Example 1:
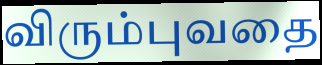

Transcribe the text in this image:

விரும்புவதை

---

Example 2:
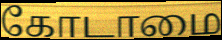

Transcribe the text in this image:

கோடாமை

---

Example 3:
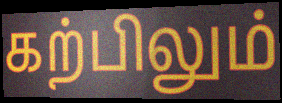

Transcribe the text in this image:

கற்பிலும்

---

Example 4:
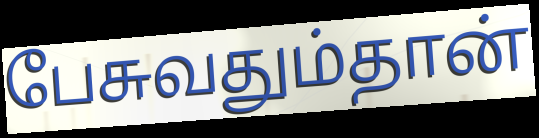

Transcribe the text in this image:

பேசுவதும்தான்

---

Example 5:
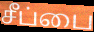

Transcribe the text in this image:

சீப்பை